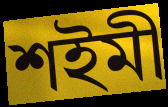
শইমী